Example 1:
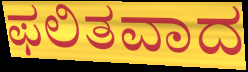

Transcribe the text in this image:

ಫಲಿತವಾದ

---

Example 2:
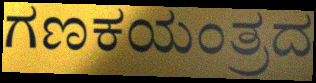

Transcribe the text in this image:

ಗಣಕಯಂತ್ರದ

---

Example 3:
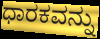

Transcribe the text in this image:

ಧಾರಕವನ್ನು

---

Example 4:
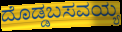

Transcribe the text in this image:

ದೊಡ್ಡಬಸವಯ್ಯ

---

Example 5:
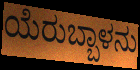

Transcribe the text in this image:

ಯೆರುಬ್ಬಾಳನು